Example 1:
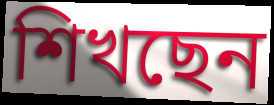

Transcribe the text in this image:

শিখছেন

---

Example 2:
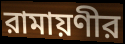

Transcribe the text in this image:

রামায়ণীর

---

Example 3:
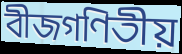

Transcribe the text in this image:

বীজগণিতীয়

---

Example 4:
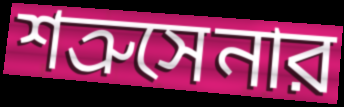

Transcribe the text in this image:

শত্রুসেনার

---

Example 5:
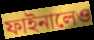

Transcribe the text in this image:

ফাইনালেও